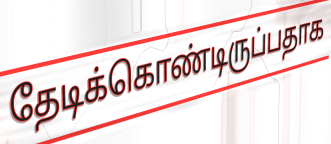
தேடிக்கொண்டிருப்பதாக